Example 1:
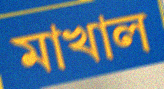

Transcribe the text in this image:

মাখাল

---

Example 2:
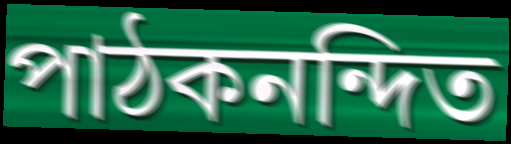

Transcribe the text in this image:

পাঠকনন্দিত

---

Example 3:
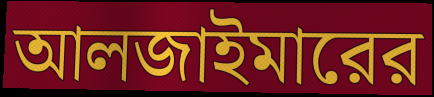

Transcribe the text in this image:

আলজাইমারের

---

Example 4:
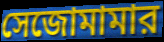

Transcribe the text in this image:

সেজোমামার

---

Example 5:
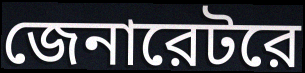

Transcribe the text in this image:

জেনারেটরে